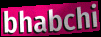
bhabchi